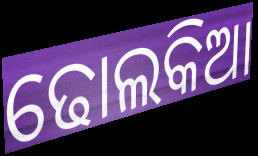
ଢୋଲକିଆ